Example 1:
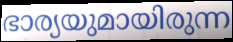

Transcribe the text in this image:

ഭാര്യയുമായിരുന്ന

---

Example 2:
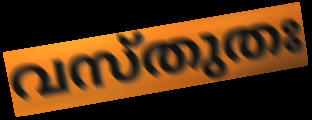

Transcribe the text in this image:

വസ്തുതഃ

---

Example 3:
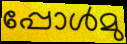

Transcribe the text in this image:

പ്പോൾമു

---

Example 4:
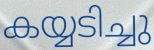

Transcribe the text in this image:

കയ്യടിച്ചു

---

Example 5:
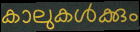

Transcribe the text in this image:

കാലുകൾക്കും